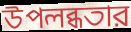
উপলব্ধতার